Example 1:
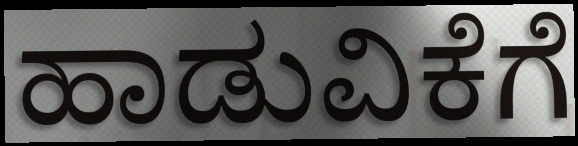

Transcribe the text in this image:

ಹಾಡುವಿಕೆಗೆ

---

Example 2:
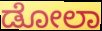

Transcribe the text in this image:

ಡೋಲಾ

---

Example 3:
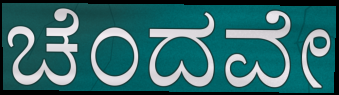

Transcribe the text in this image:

ಚೆಂದವೇ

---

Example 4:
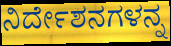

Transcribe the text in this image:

ನಿರ್ದೇಶನಗಳನ್ನ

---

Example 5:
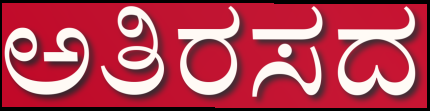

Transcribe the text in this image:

ಅತಿರಸದ